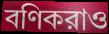
বণিকরাও